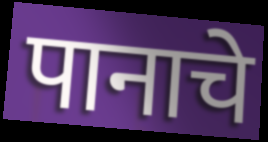
पानाचे